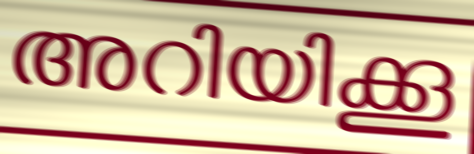
അറിയിക്കൂ